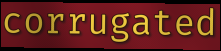
corrugated